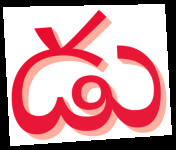
డు